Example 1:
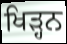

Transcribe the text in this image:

ਖਿੜ੍ਹਨ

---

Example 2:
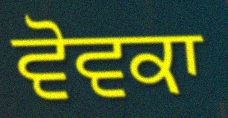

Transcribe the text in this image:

ਵੋਵਕਾ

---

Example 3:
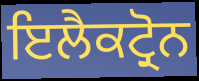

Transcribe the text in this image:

ਇਲੈਕਟ੍ਰੋਨ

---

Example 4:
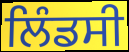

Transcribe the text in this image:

ਲਿੰਡਸੀ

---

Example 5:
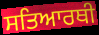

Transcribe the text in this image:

ਸਤਿਆਰਥੀ